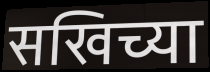
सखिच्या